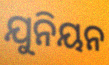
ଯୁନିୟନ